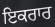
ਇਕਰਾਰ